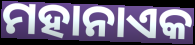
ମହାନାଏକ